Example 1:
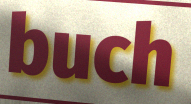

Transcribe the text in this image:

buch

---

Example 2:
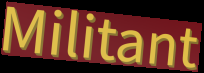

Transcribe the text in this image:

Militant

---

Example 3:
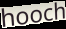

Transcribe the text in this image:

hooch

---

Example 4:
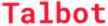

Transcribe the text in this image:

Talbot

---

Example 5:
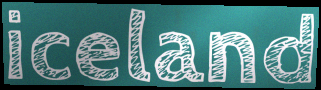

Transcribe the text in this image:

iceland